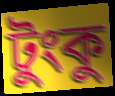
টুংকু